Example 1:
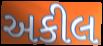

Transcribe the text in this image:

અકીલ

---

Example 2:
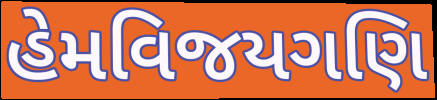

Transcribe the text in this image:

હેમવિજયગણિ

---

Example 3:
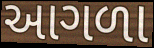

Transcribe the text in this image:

આગળા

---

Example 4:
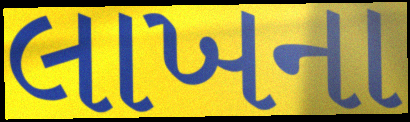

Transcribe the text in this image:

લાખના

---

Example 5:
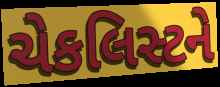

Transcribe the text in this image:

ચેકલિસ્ટને